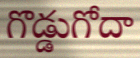
గొడ్డుగోదా